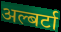
अल्बर्टा